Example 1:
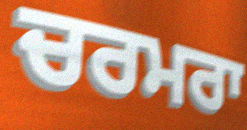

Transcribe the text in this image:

ਚਰਮਰਾ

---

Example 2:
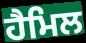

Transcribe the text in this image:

ਹੈਮਿਲ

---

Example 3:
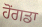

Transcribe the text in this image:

ਹੋਂਗਡਾ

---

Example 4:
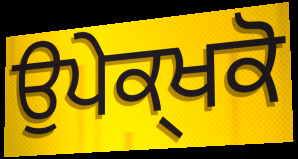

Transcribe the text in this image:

ਉਪੇਕ੍ਖਕੋ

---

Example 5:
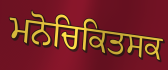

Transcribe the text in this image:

ਮਨੋਚਿਕਿਤਸਕ